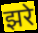
झरे